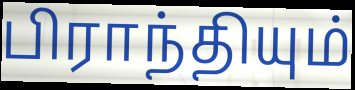
பிராந்தியும்